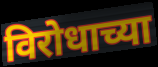
विरोधाच्या